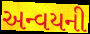
અન્વયની